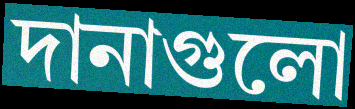
দানাগুলো